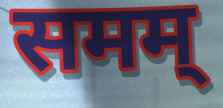
समम्